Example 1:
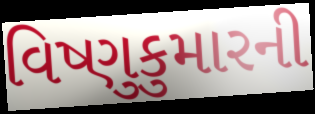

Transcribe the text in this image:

વિષ્ણુકુમારની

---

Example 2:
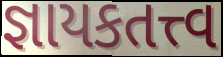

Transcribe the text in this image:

જ્ઞાયકતત્ત્વ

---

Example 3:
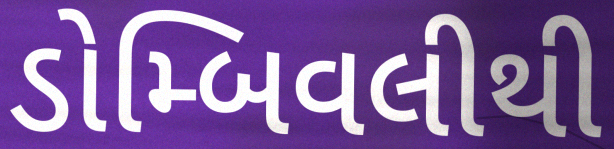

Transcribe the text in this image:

ડોમ્બિવલીથી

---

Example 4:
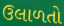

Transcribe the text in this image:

ઉલાળતો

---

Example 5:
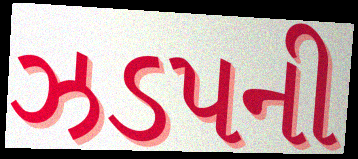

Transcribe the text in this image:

ઝડપની